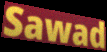
Sawad